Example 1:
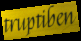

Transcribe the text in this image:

truptiben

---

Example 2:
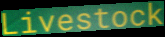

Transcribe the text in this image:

Livestock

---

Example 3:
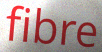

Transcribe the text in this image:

fibre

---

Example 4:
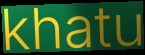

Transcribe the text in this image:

khatu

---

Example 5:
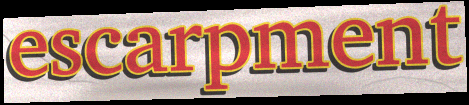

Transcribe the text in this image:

escarpment